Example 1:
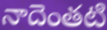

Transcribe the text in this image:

నాదెంతటి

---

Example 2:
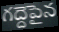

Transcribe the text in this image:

గద్దెపైన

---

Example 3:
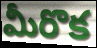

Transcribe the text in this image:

మీరొక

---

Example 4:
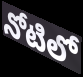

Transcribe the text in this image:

నోటిలో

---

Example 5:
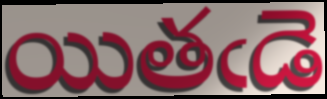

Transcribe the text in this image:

యితఁడె